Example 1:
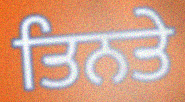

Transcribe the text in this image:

ਤਿਨਤੇ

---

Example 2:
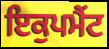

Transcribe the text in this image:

ਇਕੁਪਮੈਂਟ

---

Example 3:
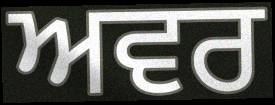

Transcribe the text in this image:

ਅਵਰ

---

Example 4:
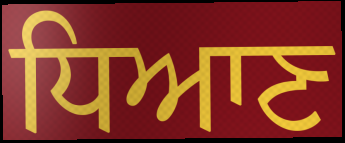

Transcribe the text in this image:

ਧਿਆਣ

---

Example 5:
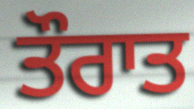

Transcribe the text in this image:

ਤੌਰਾਤ